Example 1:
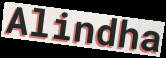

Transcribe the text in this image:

Alindha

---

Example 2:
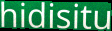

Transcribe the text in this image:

hidisitu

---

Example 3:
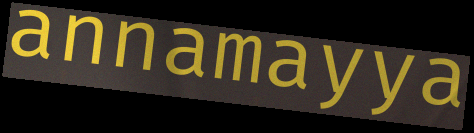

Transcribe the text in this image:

annamayya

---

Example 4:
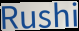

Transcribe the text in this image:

Rushi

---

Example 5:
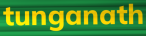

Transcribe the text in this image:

tunganath